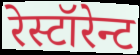
रेस्टॉरेन्ट